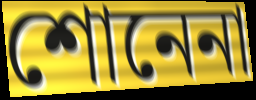
শোনেনা